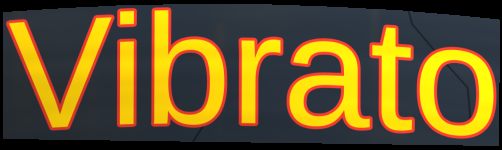
Vibrato